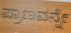
ಪ್ರಾಣವನ್ನೇ